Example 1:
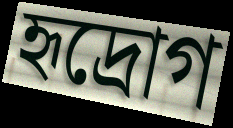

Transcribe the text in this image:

হৃদ্রোগ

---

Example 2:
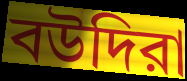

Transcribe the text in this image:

বউদিরা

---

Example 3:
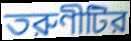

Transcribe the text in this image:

তরুণীটির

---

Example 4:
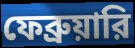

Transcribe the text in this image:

ফেব্রুয়ারি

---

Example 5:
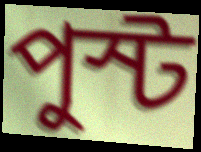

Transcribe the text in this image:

পুস্ট